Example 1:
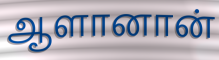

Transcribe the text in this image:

ஆளானான்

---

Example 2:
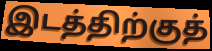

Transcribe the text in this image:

இடத்திற்குத்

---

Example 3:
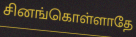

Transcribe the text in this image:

சினங்கொள்ளாதே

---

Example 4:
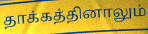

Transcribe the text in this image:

தாக்கத்தினாலும்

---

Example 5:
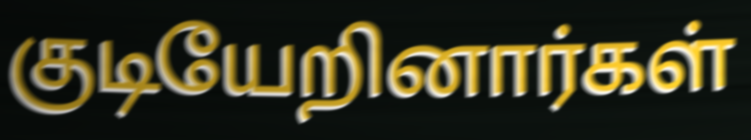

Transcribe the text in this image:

குடியேறினார்கள்